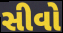
સીવો